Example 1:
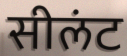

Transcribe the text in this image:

सीलंट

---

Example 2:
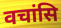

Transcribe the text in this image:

वचांसि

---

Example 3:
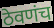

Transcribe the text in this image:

ठेवणंच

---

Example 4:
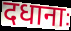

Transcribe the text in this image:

दधानाः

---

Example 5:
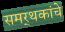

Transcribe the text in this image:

समर्थकांचे